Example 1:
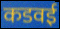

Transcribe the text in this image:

कडवई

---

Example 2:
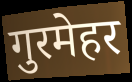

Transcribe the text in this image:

गुरमेहर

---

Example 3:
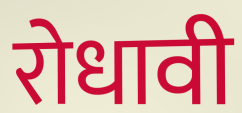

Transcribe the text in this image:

रोधावी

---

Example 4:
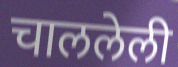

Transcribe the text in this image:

चाललेली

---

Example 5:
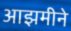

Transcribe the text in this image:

आझमीने